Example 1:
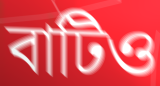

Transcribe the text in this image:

বাটিও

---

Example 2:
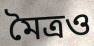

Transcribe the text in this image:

মৈত্রও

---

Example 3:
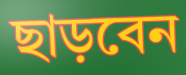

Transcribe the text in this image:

ছাড়বেন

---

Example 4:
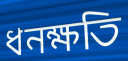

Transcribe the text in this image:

ধনক্ষতি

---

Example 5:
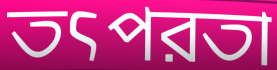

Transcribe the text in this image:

তৎপরতা